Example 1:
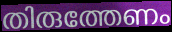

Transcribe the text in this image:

തിരുത്തേണം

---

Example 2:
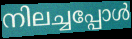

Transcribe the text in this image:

നിലച്ചപ്പോൾ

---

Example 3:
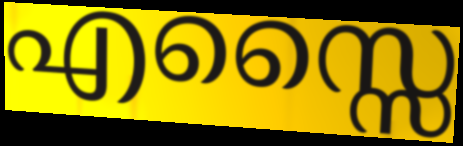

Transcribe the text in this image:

എസ്സൈ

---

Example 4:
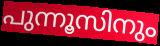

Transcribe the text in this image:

പുന്നൂസിനും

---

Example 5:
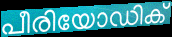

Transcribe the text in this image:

പീരിയോഡിക്